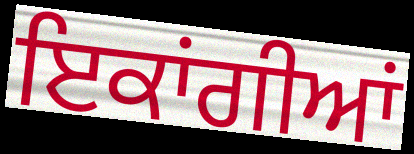
ਇਕਾਂਗੀਆਂ